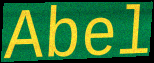
Abel